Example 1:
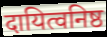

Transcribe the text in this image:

दायित्वनिष्ठ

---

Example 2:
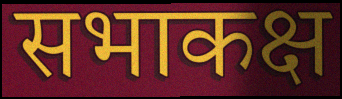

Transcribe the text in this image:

सभाकक्ष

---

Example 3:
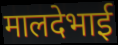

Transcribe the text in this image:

मालदेभाई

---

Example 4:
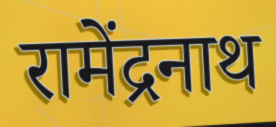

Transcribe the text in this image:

रामेंद्रनाथ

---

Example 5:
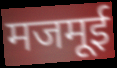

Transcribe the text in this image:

मजमूई